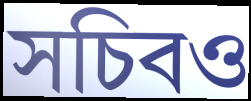
সচিবও